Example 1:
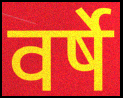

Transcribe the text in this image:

वर्षे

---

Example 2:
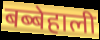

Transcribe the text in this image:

बब्बेहाली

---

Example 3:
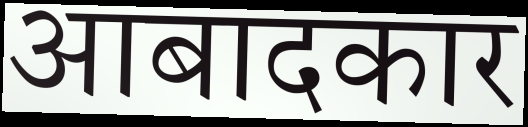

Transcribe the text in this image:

आबादकार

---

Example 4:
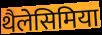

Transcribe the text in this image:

थैलेसिमिया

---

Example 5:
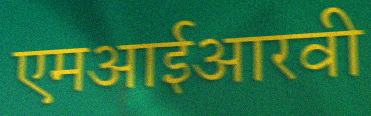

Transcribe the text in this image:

एमआईआरवी